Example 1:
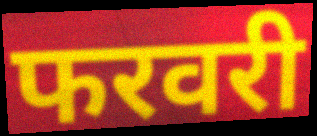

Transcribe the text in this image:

फरवरी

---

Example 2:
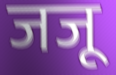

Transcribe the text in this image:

जजू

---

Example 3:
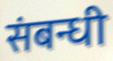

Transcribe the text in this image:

संबन्धी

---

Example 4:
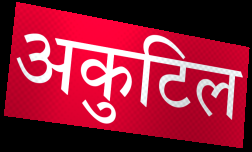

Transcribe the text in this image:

अकुटिल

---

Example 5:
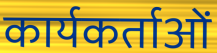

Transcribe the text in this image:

कार्यकर्ताओं